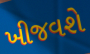
ખીજવશે